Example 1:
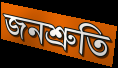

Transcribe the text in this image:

জনশ্ৰুতি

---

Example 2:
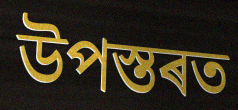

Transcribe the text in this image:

উপস্তৰত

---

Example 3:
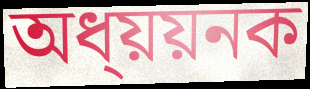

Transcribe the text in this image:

অধ্য়য়নক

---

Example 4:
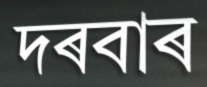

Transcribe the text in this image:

দৰবাৰ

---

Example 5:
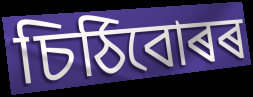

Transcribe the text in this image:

চিঠিবোৰৰ